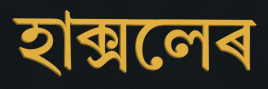
হাক্সলেৰ